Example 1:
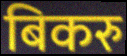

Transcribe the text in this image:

बिकरु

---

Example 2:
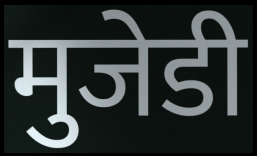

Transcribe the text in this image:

मुजेडी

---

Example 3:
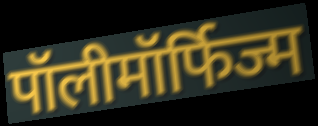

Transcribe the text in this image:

पॉलीमॉर्फिज्म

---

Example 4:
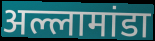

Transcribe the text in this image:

अल्लामांडा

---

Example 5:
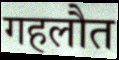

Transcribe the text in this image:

गहलौत